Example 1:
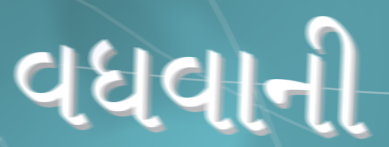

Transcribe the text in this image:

વધવાની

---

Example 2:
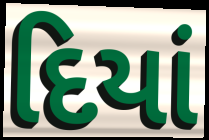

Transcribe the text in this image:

દિયાં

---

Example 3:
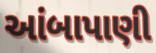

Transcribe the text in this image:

આંબાપાણી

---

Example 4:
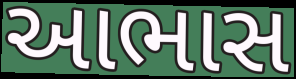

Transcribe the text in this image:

આભાસ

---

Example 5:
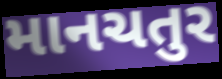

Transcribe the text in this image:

માનચતુર